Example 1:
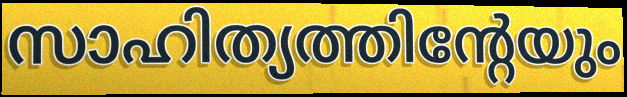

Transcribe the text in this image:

സാഹിത്യത്തിന്റേയും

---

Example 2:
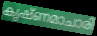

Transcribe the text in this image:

കൃഷ്ണമാചാരി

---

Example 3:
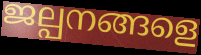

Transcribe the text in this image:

ജല്പനങ്ങളെ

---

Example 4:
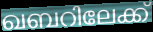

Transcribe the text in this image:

ഖബറിലേക്ക്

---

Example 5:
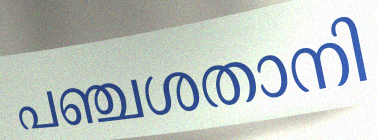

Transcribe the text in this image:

പഞ്ചശതാനി